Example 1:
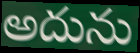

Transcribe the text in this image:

అదును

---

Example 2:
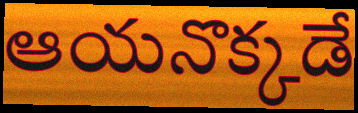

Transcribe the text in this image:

ఆయనొక్కడే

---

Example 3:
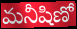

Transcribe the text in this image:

మనీషిణో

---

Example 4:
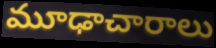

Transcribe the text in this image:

మూఢాచారాలు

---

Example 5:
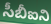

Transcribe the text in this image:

సీబీఐని